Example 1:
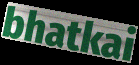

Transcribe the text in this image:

bhatkai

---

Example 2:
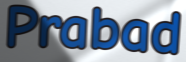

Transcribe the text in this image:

Prabad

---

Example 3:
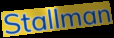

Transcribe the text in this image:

Stallman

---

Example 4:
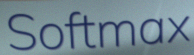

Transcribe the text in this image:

Softmax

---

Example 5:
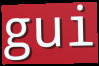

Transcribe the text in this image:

gui